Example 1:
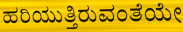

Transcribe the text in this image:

ಹರಿಯುತ್ತಿರುವಂತೆಯೇ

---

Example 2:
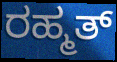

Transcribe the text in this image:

ರಹ್ಮತ್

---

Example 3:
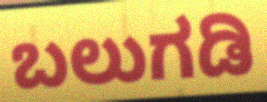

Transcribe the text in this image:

ಬಲುಗಡಿ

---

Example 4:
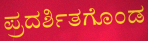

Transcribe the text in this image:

ಪ್ರದರ್ಶಿತಗೊಂಡ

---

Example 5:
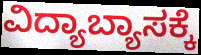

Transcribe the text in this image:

ವಿದ್ಯಾಬ್ಯಾಸಕ್ಕೆ